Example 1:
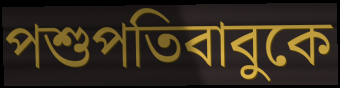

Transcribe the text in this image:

পশুপতিবাবুকে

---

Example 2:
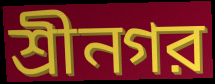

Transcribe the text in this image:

শ্রীনগর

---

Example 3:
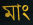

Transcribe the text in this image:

মাং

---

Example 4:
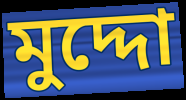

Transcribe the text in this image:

মুদ্দো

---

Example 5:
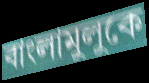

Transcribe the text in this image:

বাংলামুলুকে